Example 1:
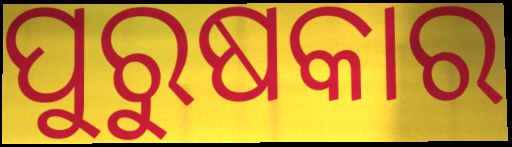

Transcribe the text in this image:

ପୁରୁଷକାର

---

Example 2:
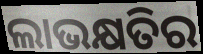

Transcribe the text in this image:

ଲାଭକ୍ଷତିର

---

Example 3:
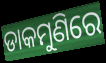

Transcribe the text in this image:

ଡାକମୁଣିରେ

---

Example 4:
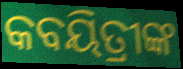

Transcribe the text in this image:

କବୟିତ୍ରୀଙ୍କ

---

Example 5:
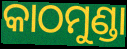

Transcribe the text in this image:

କାଠମୁଣ୍ଡା